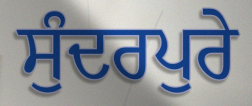
ਸੁੰਦਰਪੁਰੇ